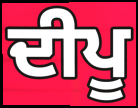
ਦੀਪੂ